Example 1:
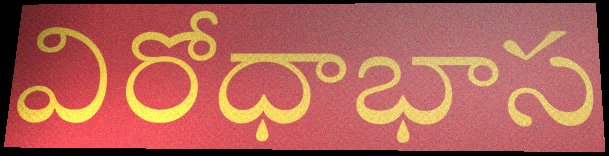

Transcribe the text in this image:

విరోధాభాస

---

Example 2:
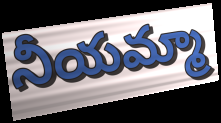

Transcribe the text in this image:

నీయమ్మా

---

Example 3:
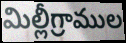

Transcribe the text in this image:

మిల్లీగ్రాముల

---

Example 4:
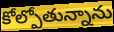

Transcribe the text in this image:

కోల్పోతున్నాను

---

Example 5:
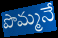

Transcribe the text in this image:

పొమ్మనే